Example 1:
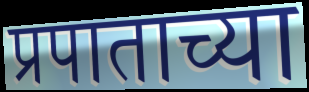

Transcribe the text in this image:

प्रपाताच्या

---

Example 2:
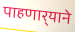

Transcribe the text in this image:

पाहणार्‍याने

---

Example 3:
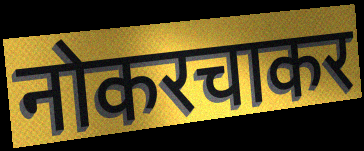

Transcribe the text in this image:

नोकरचाकर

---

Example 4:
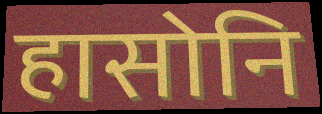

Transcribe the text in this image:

हासोनि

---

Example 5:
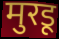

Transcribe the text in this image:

मुरडू